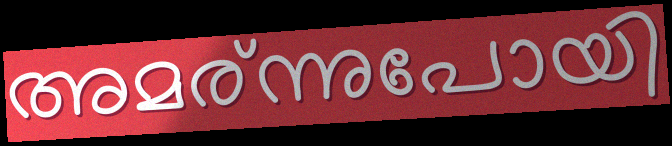
അമര്ന്നുപോയി